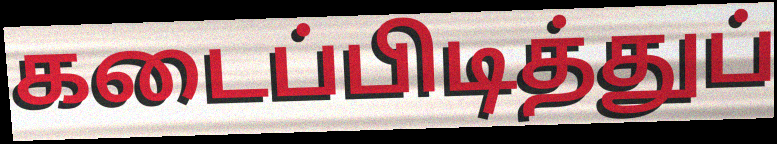
கடைப்பிடித்துப்